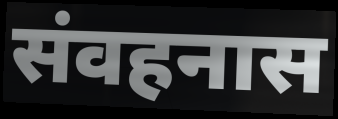
संवहनास